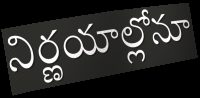
నిర్ణయాల్లోనూ